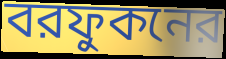
বরফুকনের